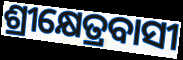
ଶ୍ରୀକ୍ଷେତ୍ରବାସୀ